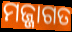
ମଜ୍ଜାଗତ